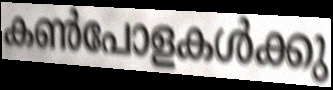
കൺപോളകൾക്കു